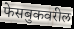
फेसबुकवरील